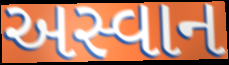
અસ્વાન